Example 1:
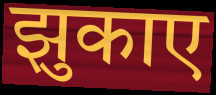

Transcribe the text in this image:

झुकाए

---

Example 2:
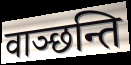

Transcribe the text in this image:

वाञ्छन्ति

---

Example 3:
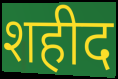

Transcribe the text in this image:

शहीद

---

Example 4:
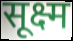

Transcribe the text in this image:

सूक्ष्म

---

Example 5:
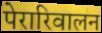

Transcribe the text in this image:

पेरारिवालन